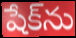
షేక్‌ను